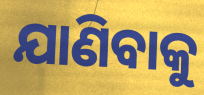
ଯାଣିବାକୁ